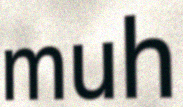
muh